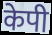
केपी